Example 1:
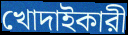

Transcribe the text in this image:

খোদাইকারী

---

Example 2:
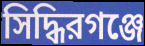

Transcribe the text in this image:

সিদ্ধিরগঞ্জে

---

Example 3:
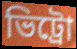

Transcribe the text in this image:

ভিট্রো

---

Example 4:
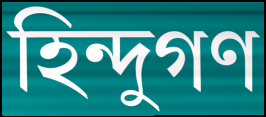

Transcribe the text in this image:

হিন্দুগণ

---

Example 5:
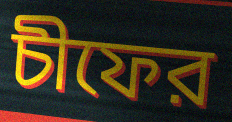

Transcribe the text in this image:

চীফের